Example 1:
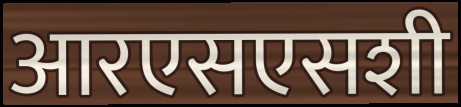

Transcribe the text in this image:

आरएसएसशी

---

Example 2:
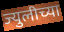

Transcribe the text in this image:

ज्युलीच्या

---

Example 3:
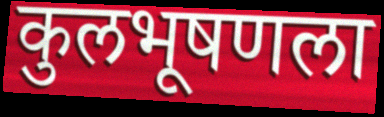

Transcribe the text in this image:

कुलभूषणला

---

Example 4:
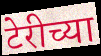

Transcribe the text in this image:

टेरीच्या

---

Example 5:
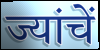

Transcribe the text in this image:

ज्यांचें